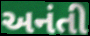
અનંતી